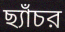
ছ্যাঁচর